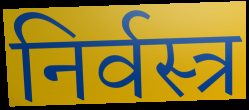
निर्वस्त्र